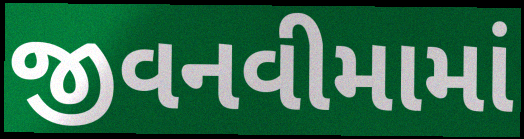
જીવનવીમામાં